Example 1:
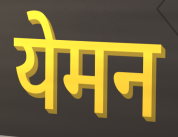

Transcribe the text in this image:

येमन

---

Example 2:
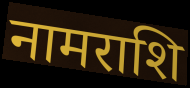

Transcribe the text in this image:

नामराशि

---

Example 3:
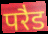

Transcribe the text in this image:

परैड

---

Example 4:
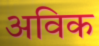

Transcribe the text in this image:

अविक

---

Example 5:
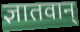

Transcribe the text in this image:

ज्ञातवान्